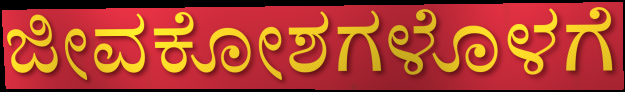
ಜೀವಕೋಶಗಳೊಳಗೆ